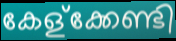
കേള്ക്കേണ്ടി